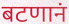
बटणानं